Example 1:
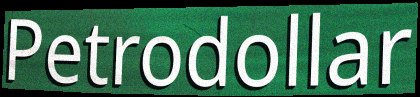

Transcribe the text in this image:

Petrodollar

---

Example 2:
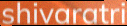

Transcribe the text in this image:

shivaratri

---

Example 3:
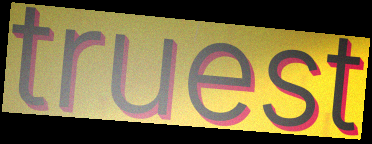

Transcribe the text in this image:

truest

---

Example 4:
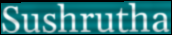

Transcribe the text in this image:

Sushrutha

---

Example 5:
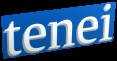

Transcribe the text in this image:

tenei